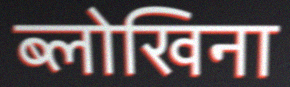
ब्लोखिना